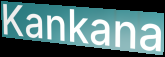
Kankana